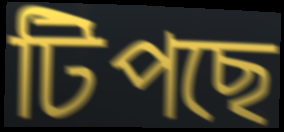
টিপছে